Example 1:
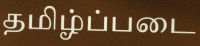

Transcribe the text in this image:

தமிழ்ப்படை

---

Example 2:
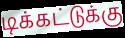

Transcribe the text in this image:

டிக்கட்டுக்கு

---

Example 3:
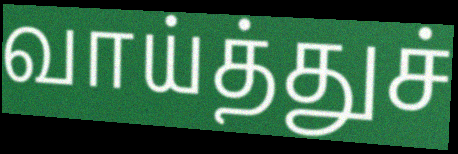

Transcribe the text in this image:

வாய்த்துச்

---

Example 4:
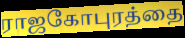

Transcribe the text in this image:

ராஜகோபுரத்தை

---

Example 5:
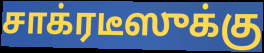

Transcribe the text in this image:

சாக்ரடீஸுக்கு